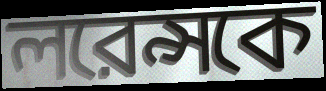
লরেন্সকে